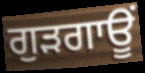
ਗੁੜਗਾਊਂ